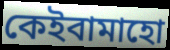
কেইবামাহো